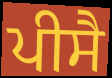
ਪੀਸੈ